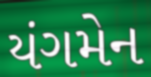
યંગમેન